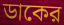
ডাকের